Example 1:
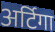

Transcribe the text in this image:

अर्टिगा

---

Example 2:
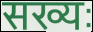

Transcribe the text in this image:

सख्यः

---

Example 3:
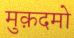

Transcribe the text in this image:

मुक़दमो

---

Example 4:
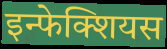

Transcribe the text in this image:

इन्फेक्शियस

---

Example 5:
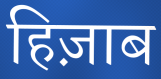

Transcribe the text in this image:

हिज़ाब